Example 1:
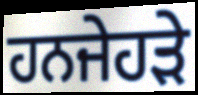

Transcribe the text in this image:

ਹਨਜੇਹੜੇ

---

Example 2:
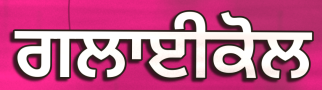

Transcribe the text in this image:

ਗਲਾਈਕੋਲ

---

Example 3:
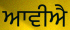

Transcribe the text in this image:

ਆਵੀਐ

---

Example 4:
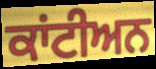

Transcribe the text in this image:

ਕਾਂਟੀਅਨ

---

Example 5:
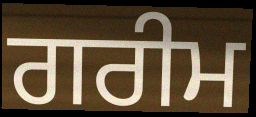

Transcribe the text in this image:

ਗਰੀਮ